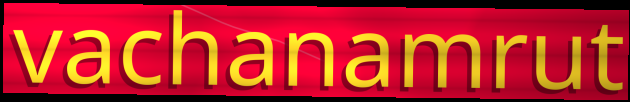
vachanamrut